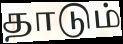
தாடும்